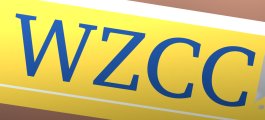
WZCC